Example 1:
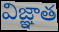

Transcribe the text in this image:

విజ్ఞాత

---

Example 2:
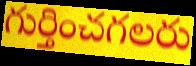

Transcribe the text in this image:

గుర్తించగలరు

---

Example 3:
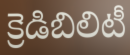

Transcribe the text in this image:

క్రెడిబిలిటీ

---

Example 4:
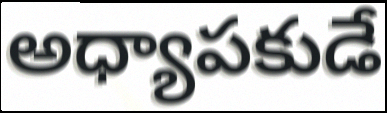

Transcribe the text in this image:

అధ్యాపకుడే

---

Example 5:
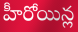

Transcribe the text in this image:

హీరోయిన్ల